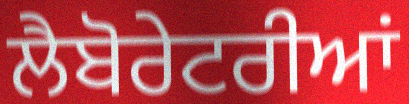
ਲੈਬੋਰੇਟਰੀਆਂ